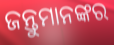
ଜନ୍ତୁମାନଙ୍କର